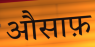
औसाफ़